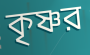
কৃষ্ণর